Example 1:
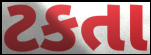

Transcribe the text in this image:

ટકતા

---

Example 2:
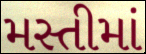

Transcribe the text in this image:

મસ્તીમાં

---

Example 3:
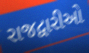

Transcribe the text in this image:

રાજદ્વારીઓ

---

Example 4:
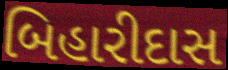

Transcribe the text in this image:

બિહારીદાસ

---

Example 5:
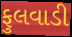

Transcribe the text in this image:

ફુલવાડી